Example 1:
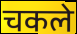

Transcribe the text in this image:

चकले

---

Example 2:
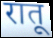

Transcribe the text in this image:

रातू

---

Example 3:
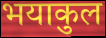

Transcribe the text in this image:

भयाकुल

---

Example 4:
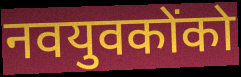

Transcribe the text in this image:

नवयुवकोंको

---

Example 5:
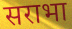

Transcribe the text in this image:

सराभा